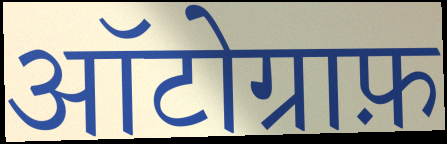
ऑटोग्राफ़